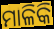
ମାଳିକି